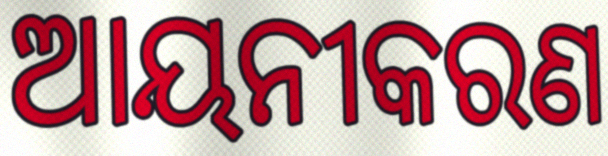
ଆୟନୀକରଣ